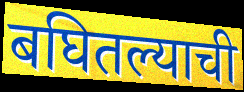
बघितल्याची